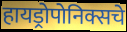
हायड्रोपोनिक्सचे